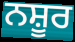
ਨਸ਼ੂਰ